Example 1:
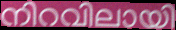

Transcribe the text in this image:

നിറവിലായി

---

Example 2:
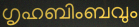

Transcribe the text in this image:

ഗൃഹബിംബവും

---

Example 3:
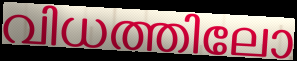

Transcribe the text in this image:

വിധത്തിലോ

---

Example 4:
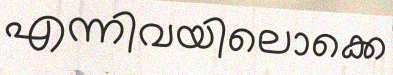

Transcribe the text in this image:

എന്നിവയിലൊക്കെ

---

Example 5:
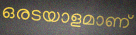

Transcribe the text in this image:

ഒരടയാളമാണ്